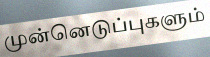
முன்னெடுப்புகளும்